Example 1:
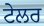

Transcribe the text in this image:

ਟੇਲਰ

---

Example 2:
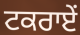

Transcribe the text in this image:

ਟਕਰਾਏਂ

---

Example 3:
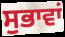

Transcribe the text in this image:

ਸੁਭਾਵਾਂ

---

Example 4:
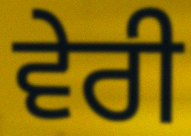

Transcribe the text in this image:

ਵੇਰੀ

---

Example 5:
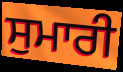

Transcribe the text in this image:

ਸੁਮਾਰੀ